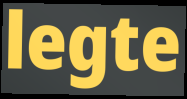
legte